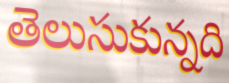
తెలుసుకున్నది